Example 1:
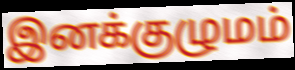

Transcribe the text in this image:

இனக்குழுமம்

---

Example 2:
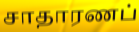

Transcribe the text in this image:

சாதாரணப்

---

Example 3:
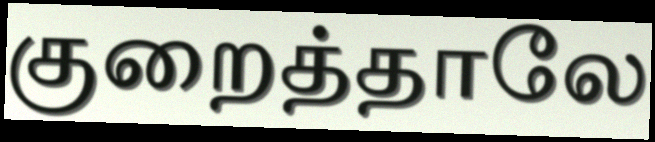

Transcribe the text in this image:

குறைத்தாலே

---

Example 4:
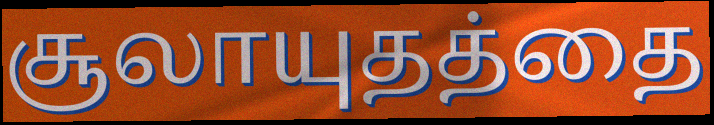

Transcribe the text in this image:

சூலாயுதத்தை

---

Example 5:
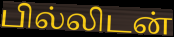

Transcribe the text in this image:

பில்லிடன்